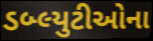
ડબ્લ્યુટીઓના